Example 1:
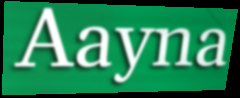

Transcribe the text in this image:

Aayna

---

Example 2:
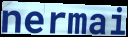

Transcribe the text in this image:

nermai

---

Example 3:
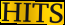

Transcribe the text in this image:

HITS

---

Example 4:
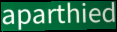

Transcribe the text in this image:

aparthied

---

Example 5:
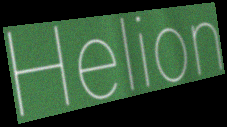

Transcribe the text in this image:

Helion